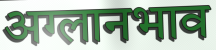
अग्लानभाव